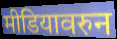
मीडियावरुन